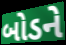
બોડને